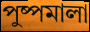
পুষ্পমালা